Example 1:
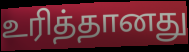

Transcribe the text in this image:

உரித்தானது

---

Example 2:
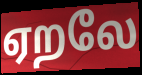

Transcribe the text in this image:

ஏறலே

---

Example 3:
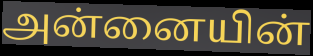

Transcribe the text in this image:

அன்னையின்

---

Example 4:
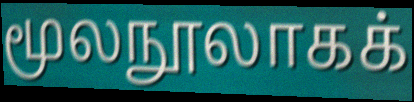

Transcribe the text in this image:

மூலநூலாகக்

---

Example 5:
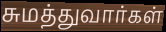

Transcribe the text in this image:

சுமத்துவார்கள்